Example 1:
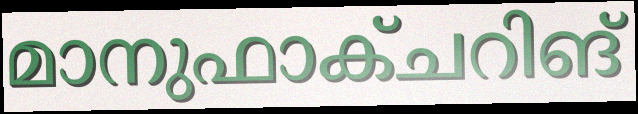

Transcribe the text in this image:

മാനുഫാക്ചറിങ്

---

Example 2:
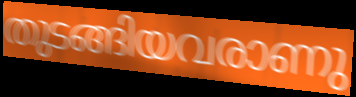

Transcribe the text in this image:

തുടങ്ങിയവരാണു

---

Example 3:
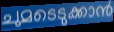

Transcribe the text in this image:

ചുമടെടുക്കാൻ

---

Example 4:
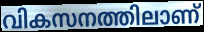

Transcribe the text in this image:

വികസനത്തിലാണ്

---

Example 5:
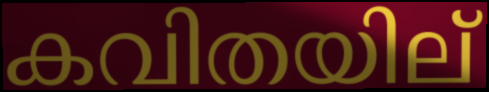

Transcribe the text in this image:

കവിതയില്